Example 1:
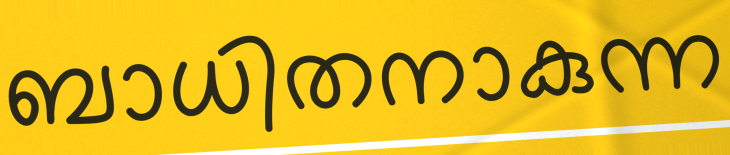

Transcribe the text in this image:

ബാധിതനാകുന്ന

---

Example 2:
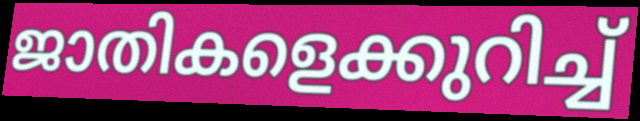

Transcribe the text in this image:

ജാതികളെക്കുറിച്ച്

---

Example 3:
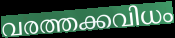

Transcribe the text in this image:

വരത്തക്കവിധം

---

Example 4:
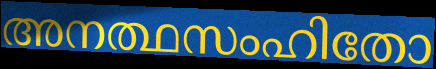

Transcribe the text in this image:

അനത്ഥസംഹിതോ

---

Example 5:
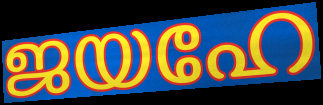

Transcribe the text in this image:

ജയഹേ